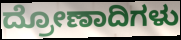
ದ್ರೋಣಾದಿಗಳು